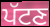
ਪੱਟਣ